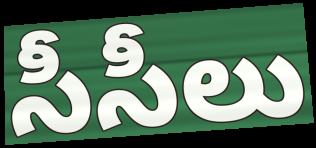
సీసీలు